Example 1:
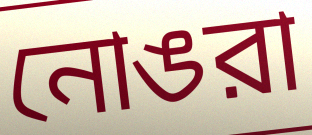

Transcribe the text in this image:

নোঙরা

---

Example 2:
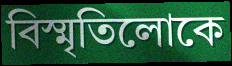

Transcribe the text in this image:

বিস্মৃতিলোকে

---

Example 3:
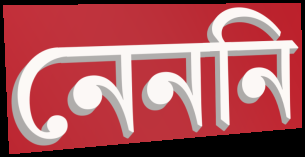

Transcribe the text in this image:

নেননি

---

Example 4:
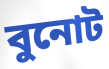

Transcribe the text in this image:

বুনোট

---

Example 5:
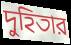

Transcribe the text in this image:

দুহিতার